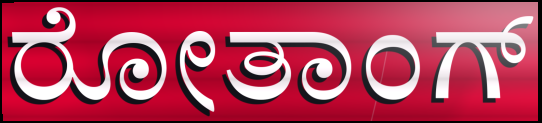
ರೋತಾಂಗ್